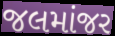
જલમાંજર